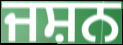
ਜਸ਼ਨ